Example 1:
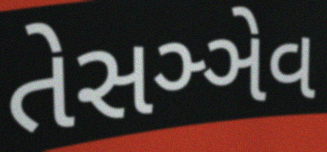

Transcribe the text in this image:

તેસઞ્ઞેવ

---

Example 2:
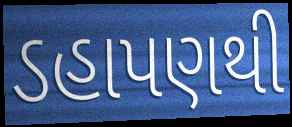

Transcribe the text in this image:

ડહાપણથી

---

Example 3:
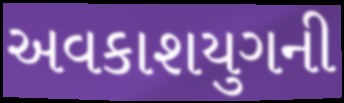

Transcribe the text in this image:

અવકાશયુગની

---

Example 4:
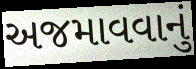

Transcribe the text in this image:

અજમાવવાનું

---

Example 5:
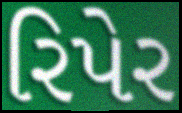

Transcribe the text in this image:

રિપેર